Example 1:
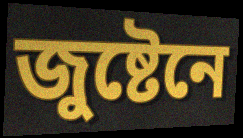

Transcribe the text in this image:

জুষ্টেনে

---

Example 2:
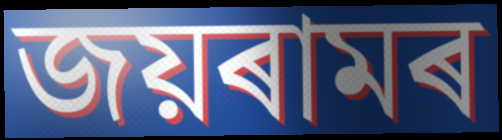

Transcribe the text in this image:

জয়ৰামৰ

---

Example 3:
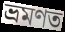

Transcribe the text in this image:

ভ্ৰমণত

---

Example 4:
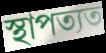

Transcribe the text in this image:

স্থাপত্যত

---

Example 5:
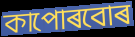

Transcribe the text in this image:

কাপোৰবোৰ